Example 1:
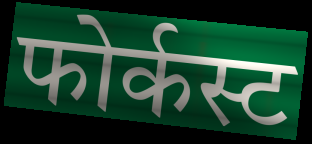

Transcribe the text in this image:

फोर्कस्ट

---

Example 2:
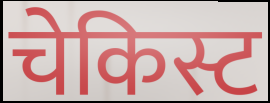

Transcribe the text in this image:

चेकिस्ट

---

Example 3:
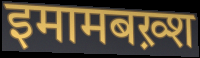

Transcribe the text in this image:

इमामबख़्श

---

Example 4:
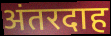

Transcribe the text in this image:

अंतरदाह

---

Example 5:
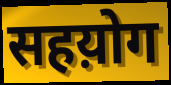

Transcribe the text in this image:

सहय़ोग